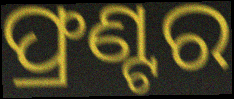
ଫ୍ରଣ୍ଟର